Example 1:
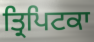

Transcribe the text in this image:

ਤ੍ਰਿਪਿਟਕਾ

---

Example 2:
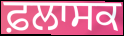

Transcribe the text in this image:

ਫ਼ਲਾਸਕ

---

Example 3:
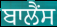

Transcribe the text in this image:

ਬਾਲੈਂਸ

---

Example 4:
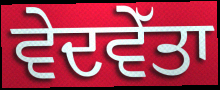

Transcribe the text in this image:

ਵੇਦਵੇੱਤਾ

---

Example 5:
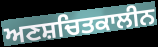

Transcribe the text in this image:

ਅਣਸ਼ਚਿਤਕਾਲੀਨ